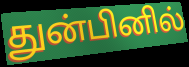
துன்பினில்